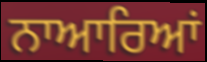
ਨਾਆਰਿਆਂ